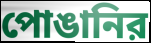
পোঙানির